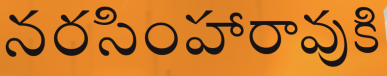
నరసింహారావుకి